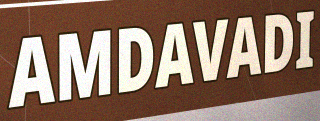
AMDAVADI